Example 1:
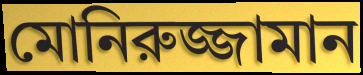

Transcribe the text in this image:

মোনিরুজ্জামান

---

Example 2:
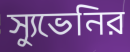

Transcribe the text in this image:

স্যুভেনির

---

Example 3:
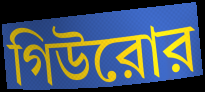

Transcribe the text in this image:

গিউরোর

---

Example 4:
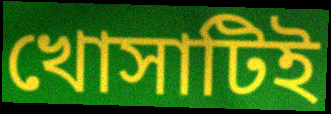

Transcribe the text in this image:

খোসাটিই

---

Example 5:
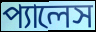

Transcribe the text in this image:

প্যালেস